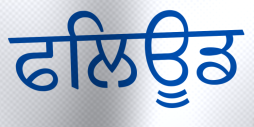
ਫਲਿਊਡ